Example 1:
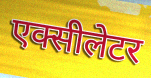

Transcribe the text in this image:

एक्सीलेटर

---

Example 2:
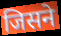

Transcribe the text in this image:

जिसने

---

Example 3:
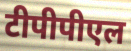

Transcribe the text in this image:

टीपीपीएल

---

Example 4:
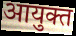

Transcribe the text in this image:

आयुक्त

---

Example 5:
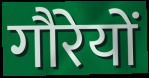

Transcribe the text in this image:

गौरेयों